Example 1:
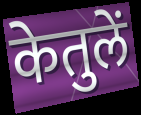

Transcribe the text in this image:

केतुलें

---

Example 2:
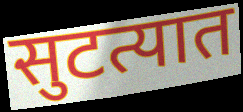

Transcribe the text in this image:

सुटत्यात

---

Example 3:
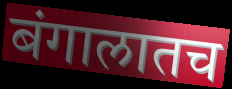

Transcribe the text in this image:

बंगालातच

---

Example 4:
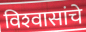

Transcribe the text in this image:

विश्‍वासांचे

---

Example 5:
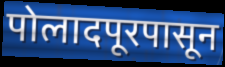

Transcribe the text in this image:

पोलादपूरपासून